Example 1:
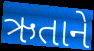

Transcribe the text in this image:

ઋતાને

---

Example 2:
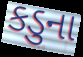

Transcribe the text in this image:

કડુના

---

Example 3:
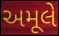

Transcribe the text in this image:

અમૂલે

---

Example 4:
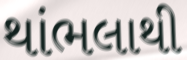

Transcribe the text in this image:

થાંભલાથી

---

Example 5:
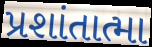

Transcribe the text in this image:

પ્રશાંતાત્મા